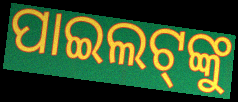
ପାଇଲଟ୍‌ଙ୍କୁ